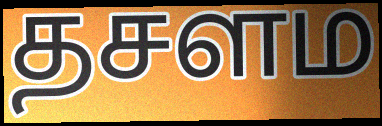
தசளம